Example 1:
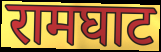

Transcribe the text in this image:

रामघाट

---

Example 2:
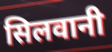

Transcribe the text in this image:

सिलवानी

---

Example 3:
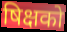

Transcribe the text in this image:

षिक्षको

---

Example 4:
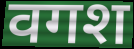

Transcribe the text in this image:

वगश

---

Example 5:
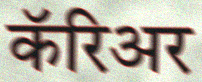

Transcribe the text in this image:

कॅरिअर